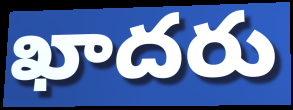
ఖాదరు